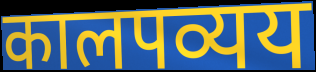
कालपव्यय